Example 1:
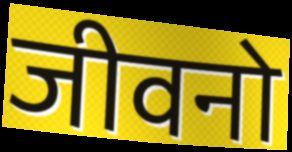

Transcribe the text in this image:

जीवनो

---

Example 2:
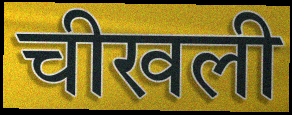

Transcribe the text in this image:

चीखली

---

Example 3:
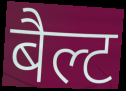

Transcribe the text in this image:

बैल्ट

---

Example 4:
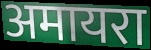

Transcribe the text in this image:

अमायरा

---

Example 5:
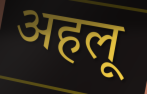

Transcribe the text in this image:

अहलू